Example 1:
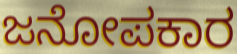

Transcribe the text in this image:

ಜನೋಪಕಾರ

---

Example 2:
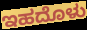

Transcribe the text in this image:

ಇಹದೊಳು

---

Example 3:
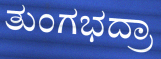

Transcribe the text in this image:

ತುಂಗಭದ್ರಾ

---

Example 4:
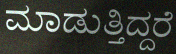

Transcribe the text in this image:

ಮಾಡುತ್ತಿದ್ದರೆ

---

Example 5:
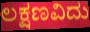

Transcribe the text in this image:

ಲಕ್ಷಣವಿದು